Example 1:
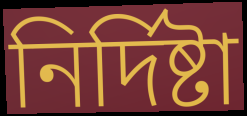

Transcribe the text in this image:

নির্দিষ্টা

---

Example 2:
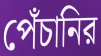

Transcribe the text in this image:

পেঁচানির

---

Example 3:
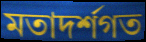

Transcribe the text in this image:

মতাদর্শগত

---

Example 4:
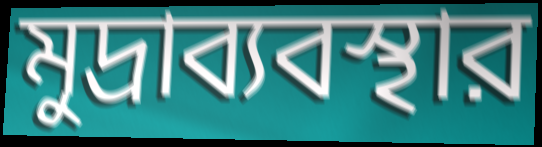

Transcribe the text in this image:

মুদ্রাব্যবস্থার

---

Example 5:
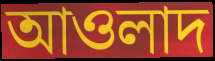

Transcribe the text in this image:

আওলাদ